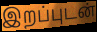
இறப்புடன்